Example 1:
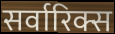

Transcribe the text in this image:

सर्वारिक्स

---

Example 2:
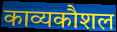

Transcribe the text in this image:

काव्यकौशल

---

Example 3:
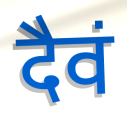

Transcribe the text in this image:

दैवं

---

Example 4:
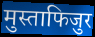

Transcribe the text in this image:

मुस्ताफिजुर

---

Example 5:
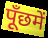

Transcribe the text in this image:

पूँछमें